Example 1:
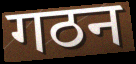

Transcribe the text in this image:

गठन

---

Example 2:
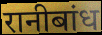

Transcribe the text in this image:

रानीबांध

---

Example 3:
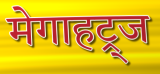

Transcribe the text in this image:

मेगाहट्र्ज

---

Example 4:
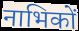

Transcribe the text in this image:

नाभिकों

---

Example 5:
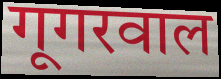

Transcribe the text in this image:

गूगरवाल